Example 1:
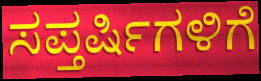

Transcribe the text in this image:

ಸಪ್ತರ್ಷಿಗಳಿಗೆ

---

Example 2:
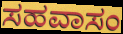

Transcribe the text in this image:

ಸಹವಾಸಂ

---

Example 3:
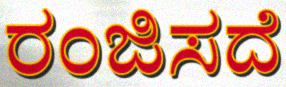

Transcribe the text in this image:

ರಂಜಿಸದೆ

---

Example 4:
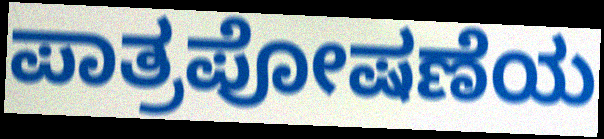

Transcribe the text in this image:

ಪಾತ್ರಪೋಷಣೆಯ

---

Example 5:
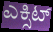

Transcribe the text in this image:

ಎಕ್ಸಿಟ್